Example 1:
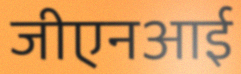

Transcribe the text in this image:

जीएनआई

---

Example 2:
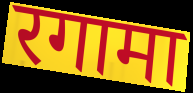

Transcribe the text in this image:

रगामा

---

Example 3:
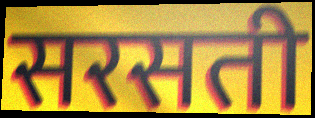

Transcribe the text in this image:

सरसती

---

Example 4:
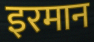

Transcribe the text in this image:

इरमान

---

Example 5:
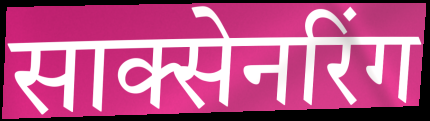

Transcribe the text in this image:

साक्सेनरिंग